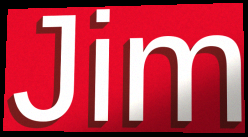
Jim